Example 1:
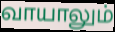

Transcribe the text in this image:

வாயாலும்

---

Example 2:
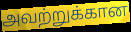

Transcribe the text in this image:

அவற்றுக்கான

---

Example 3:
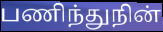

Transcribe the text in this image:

பணிந்துநின்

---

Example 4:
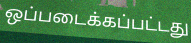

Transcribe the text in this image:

ஒப்படைக்கப்பட்டது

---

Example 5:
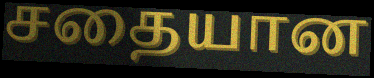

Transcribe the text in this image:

சதையான